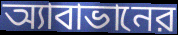
অ্যাবাভানের